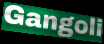
Gangoli